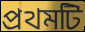
প্ৰথমটি